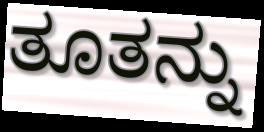
ತೂತನ್ನು